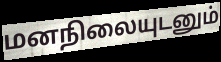
மனநிலையுடனும்